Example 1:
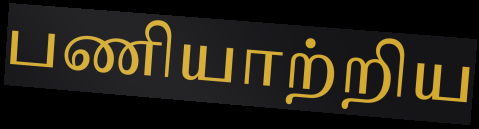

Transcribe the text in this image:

பணியாற்றிய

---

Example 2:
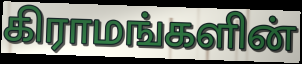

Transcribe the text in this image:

கிராமங்களின்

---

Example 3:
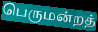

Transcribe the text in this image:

பெருமன்றத்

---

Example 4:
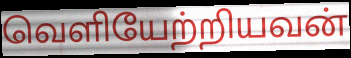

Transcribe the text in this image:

வெளியேற்றியவன்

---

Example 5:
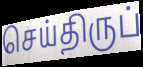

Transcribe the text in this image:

செய்திருப்